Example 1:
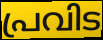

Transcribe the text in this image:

പ്രവിട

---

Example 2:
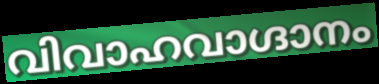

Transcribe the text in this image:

വിവാഹവാഗ്ദാനം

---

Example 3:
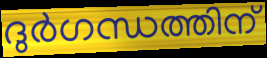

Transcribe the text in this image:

ദുർഗന്ധത്തിന്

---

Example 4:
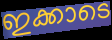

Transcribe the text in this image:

ഇക്കാടെ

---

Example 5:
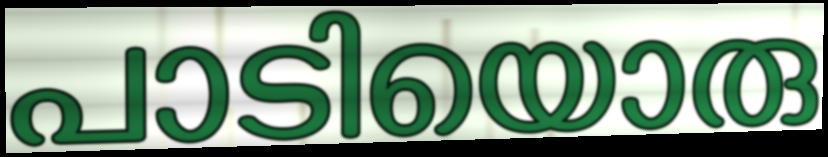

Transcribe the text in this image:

പാടിയൊരു